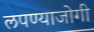
लपण्याजोगी